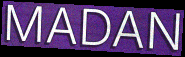
MADAN